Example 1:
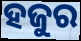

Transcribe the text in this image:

ହଜୁର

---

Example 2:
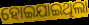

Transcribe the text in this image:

ହୋଇଯାଇଥିଲା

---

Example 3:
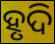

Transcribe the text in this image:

ହୃଦି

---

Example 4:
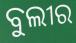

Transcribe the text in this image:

ବୁଲୀର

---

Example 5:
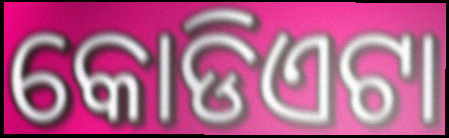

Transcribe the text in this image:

କୋଡିଏଟା